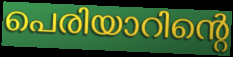
പെരിയാറിന്റെ